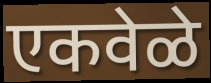
एकवेळे